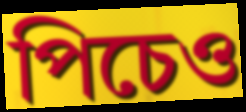
পিচেও